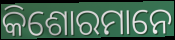
କିଶୋରମାନେ